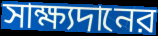
সাক্ষ্যদানের